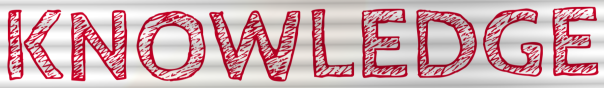
KNOWLEDGE